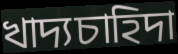
খাদ্যচাহিদা